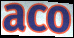
aco